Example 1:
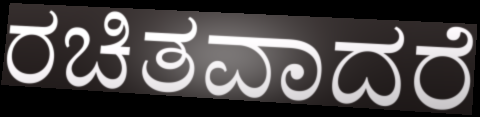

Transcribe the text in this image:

ರಚಿತವಾದರೆ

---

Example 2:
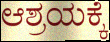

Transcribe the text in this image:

ಆಶ್ರಯಕ್ಕೆ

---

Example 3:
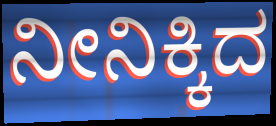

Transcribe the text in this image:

ನೀನಿಕ್ಕಿದ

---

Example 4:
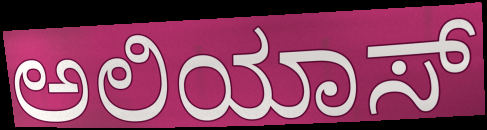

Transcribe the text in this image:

ಅಲಿಯಾಸ್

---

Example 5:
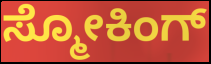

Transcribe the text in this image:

ಸ್ಮೋಕಿಂಗ್